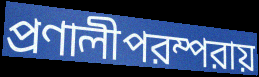
প্রণালীপরম্পরায়